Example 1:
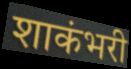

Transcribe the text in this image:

शाकंभरी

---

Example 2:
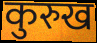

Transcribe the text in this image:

कुरुख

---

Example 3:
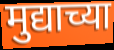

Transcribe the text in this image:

मुद्याच्या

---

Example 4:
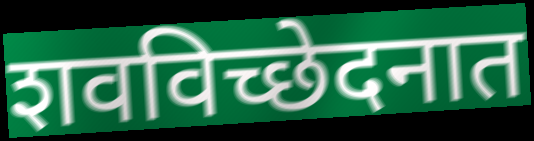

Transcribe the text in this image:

शवविच्छेदनात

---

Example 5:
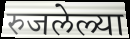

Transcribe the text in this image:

रुजलेल्या